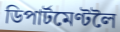
ডিপাৰ্টমেণ্টলৈ